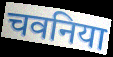
चवनिया